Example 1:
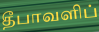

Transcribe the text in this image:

தீபாவளிப்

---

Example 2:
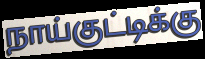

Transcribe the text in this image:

நாய்குட்டிக்கு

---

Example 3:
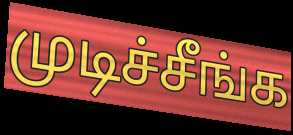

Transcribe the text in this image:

முடிச்சீங்க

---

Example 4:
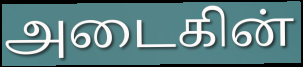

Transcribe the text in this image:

அடைகின்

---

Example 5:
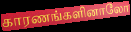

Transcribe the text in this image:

காரணங்களினாலோ